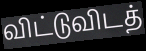
விட்டுவிடத்